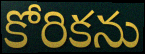
కోరికను